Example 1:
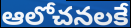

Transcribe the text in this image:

ఆలోచనలకే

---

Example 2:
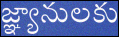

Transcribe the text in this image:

జ్ఞ్యానులకు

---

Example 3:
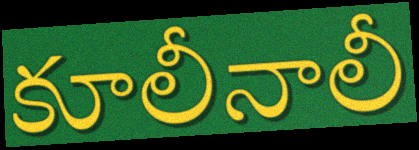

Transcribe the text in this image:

కూలీనాలీ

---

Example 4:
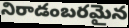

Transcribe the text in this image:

నిరాడంబరమైన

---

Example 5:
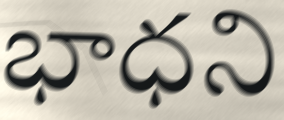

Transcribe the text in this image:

భాధని